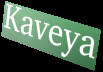
Kaveya